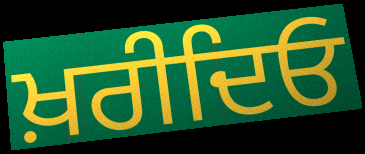
ਖ਼ਰੀਦਿਓ